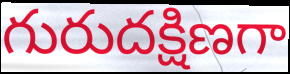
గురుదక్షిణగా